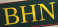
BHN